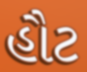
હૌટ